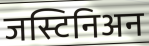
जस्टिनिअन